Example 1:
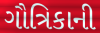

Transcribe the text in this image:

ગૌત્રિકાની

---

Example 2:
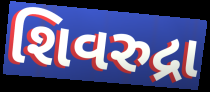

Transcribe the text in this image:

શિવરુદ્રા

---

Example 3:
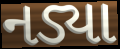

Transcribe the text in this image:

નડ્યા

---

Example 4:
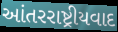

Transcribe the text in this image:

આંતરરાષ્ટ્રીયવાદ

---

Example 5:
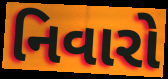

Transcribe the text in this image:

નિવારો